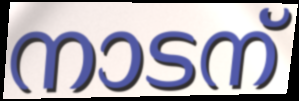
നാടന്